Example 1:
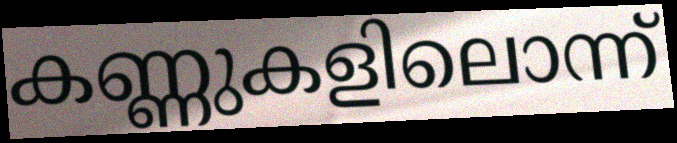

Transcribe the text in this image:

കണ്ണുകളിലൊന്ന്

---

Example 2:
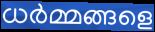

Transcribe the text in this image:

ധർമ്മങ്ങളെ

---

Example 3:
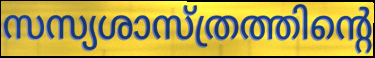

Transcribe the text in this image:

സസ്യശാസ്ത്രത്തിന്റെ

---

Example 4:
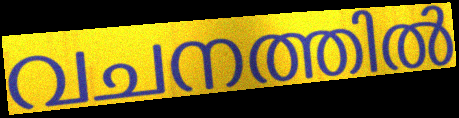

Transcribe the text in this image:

വചനത്തിൽ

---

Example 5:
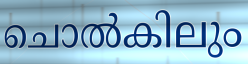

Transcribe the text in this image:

ചൊൽകിലും